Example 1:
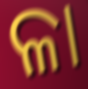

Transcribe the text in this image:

ଳା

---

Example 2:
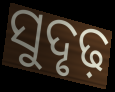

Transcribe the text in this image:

ସୁଦୃଢ଼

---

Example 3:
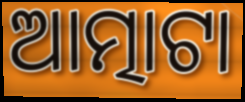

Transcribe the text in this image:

ଆତ୍ମାଟା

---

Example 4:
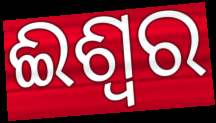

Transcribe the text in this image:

ଈଶ୍ୱର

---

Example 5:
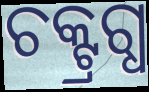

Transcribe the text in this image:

ଚକ୍ଟ୍ରଗ୍ଧ